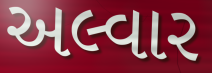
અલ્વાર